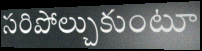
సరిపోల్చుకుంటూ